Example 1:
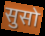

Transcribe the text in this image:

सुसो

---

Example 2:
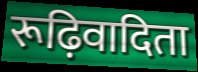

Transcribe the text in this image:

रूढ़िवादिता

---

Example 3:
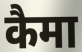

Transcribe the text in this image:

कैमा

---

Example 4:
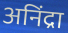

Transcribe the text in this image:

अनिंद्रा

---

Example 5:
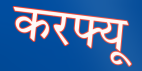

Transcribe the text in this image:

करफ्यू